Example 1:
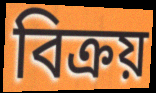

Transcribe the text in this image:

বিক্রয়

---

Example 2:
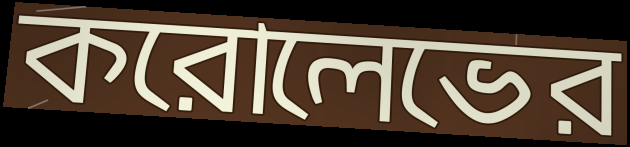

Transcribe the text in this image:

করোলেভের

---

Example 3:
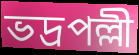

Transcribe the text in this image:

ভদ্রপল্লী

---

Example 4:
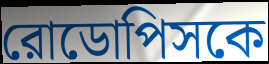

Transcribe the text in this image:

রোডোপিসকে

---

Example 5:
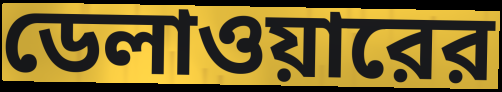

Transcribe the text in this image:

ডেলাওয়ারের